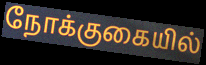
நோக்குகையில்